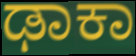
ಢಾಕಾ